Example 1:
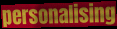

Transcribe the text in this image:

personalising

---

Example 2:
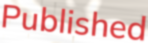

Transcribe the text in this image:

Published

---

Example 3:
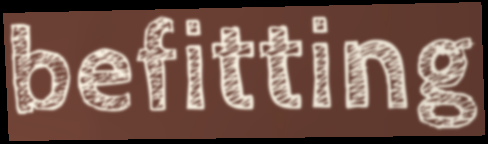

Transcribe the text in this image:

befitting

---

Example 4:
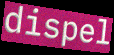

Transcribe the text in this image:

dispel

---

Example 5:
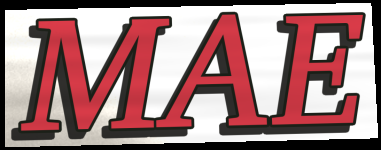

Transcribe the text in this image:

MAE